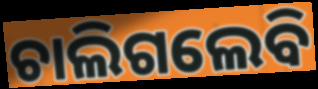
ଚାଲିଗଲେବି